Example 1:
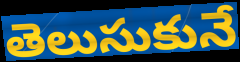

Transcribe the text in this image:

తెలుసుకునే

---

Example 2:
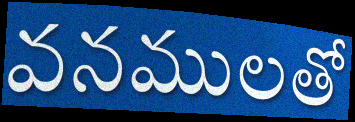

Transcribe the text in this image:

వనములతో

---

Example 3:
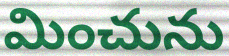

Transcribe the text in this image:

మించును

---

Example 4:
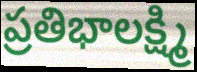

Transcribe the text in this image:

ప్రతిభాలక్ష్మి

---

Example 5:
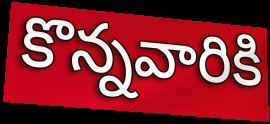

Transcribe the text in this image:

కొన్నవారికి